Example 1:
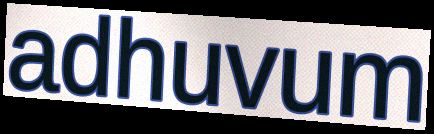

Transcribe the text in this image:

adhuvum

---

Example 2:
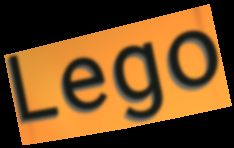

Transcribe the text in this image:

Lego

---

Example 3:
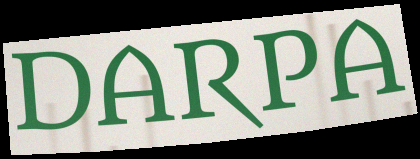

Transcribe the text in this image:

DARPA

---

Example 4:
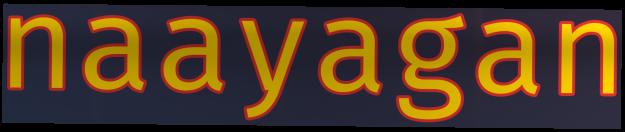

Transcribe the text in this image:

naayagan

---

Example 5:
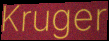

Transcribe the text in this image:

Kruger